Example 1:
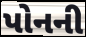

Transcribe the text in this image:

પોનની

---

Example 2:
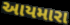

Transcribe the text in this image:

આયમારા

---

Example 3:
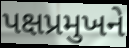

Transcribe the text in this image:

પક્ષપ્રમુખને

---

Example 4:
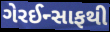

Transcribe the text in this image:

ગેરઈન્સાફથી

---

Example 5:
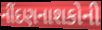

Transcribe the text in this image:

નીંદણનાશકોની